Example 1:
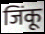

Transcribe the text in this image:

जिंकू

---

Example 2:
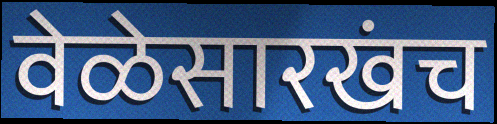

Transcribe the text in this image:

वेळेसारखंच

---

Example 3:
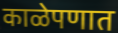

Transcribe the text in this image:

काळेपणात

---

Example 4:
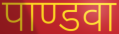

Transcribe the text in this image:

पाण्डवा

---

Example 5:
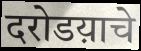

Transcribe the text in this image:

दरोडय़ाचे